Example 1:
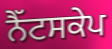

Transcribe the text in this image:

ਨੈੱਟਸਕੇਪ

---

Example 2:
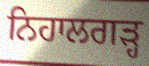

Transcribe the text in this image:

ਨਿਹਾਲਗੜ੍ਹ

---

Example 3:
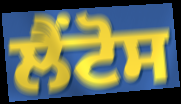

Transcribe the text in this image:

ਲੈਂਟੋਸ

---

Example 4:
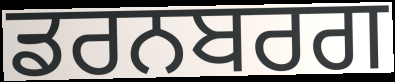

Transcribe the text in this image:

ਡਰਨਬਰਗ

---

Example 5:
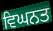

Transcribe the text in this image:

ਵਿਘਨਤ